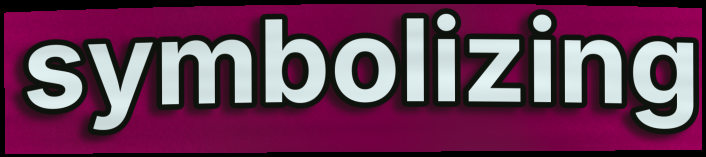
symbolizing